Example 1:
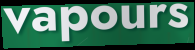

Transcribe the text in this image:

vapours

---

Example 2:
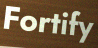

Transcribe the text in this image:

Fortify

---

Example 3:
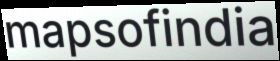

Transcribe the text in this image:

mapsofindia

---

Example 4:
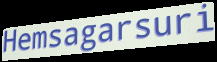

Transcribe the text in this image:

Hemsagarsuri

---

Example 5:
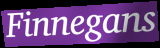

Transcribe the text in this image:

Finnegans